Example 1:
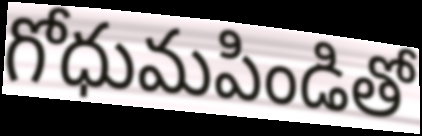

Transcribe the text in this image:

గోధుమపిండితో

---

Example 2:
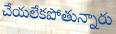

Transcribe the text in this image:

చేయలేకపోతున్నారు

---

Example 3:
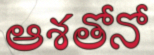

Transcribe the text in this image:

ఆశతోనో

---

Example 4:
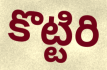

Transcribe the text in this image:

కొట్టిరి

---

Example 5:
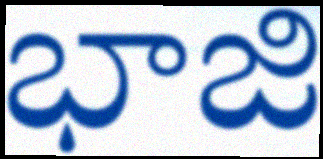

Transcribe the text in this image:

భాజి